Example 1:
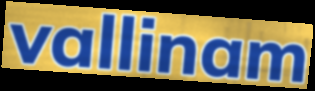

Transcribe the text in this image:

vallinam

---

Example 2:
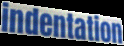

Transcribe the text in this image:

indentation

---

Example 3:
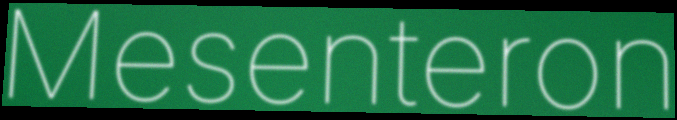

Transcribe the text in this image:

Mesenteron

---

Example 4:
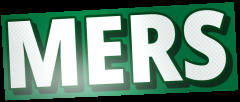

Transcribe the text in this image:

MERS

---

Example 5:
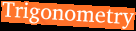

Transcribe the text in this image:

Trigonometry